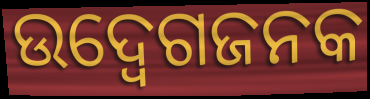
ଉଦ୍ବେଗଜନକ